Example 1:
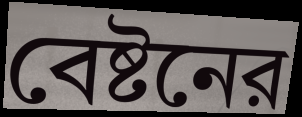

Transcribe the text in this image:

বেষ্টনের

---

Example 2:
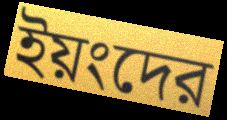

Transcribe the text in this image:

ইয়ংদের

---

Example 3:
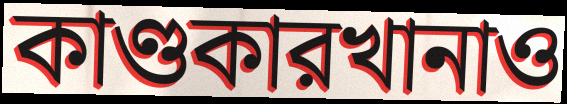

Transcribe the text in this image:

কাণ্ডকারখানাও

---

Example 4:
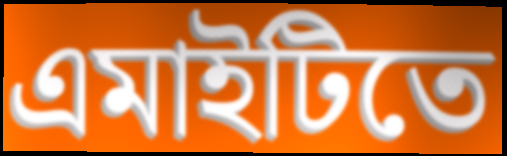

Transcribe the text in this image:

এমাইটিতে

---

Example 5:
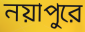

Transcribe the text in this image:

নয়াপুরে